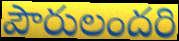
పౌరులందరి